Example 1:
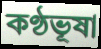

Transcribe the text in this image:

কণ্ঠভূষা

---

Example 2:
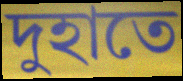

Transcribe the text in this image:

দুহাতে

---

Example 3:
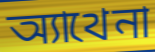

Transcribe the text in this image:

অ্যাথেনা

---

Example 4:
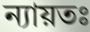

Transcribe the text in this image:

ন্যায়তঃ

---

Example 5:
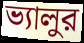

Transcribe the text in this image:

ভ্যালুর